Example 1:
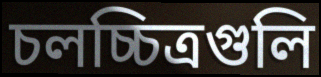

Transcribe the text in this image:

চলচ্চিত্রগুলি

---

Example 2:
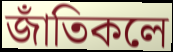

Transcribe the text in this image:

জাঁতিকলে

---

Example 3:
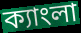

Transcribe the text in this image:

ক্যাংলা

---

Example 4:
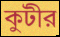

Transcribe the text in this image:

কুটীর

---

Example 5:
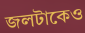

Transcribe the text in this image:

জলটাকেও